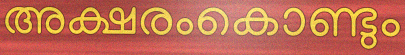
അക്ഷരംകൊണ്ടും